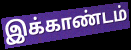
இக்காண்டம்